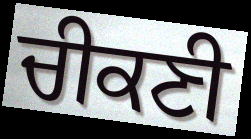
ਚੀਕਣੀ